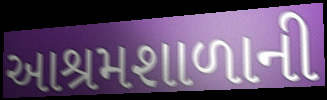
આશ્રમશાળાની